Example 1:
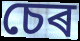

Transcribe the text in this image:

চেৰ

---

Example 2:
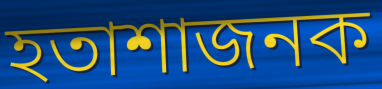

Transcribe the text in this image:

হতাশাজনক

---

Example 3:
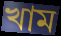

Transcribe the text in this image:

খাম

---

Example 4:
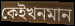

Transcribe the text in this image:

কেইখনমান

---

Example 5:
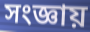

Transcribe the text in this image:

সংজ্ঞায়